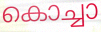
കൊച്ചാ